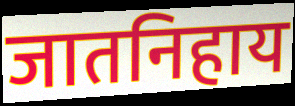
जातनिहाय